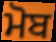
ਮੋਬ